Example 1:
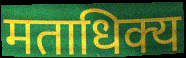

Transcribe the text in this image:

मताधिक्‍य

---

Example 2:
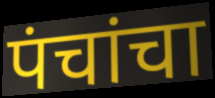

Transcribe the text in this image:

पंचांचा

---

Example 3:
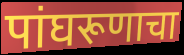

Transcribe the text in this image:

पांघरूणाचा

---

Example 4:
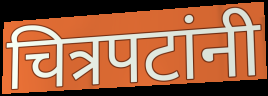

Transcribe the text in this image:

चित्रपटांनी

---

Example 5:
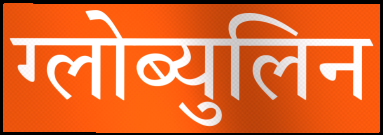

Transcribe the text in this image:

ग्लोब्युलिन